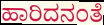
ಹಾರಿದನಂತೆ